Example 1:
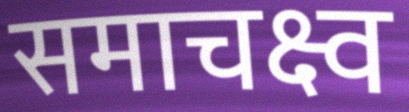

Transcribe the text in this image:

समाचक्ष्व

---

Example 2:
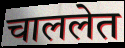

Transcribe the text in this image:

चाललेत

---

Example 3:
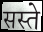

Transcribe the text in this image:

सस्ते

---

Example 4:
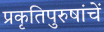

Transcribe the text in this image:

प्रकृतिपुरुषांचें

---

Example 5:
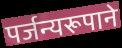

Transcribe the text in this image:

पर्जन्यरूपाने